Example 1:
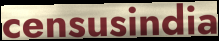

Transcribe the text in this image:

censusindia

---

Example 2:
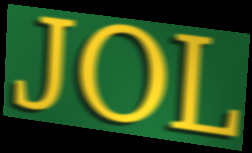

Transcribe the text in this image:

JOL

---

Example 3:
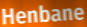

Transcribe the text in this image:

Henbane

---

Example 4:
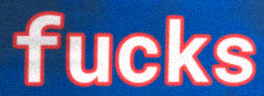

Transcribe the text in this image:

fucks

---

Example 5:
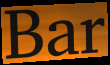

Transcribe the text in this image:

Bar